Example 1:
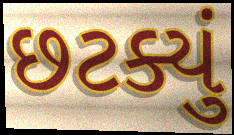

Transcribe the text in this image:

છટક્યું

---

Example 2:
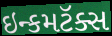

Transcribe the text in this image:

ઇન્કમટૅક્સ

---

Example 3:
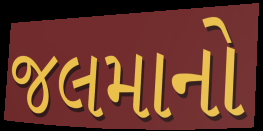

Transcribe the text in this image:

જલમાનો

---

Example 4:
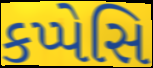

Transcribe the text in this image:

કપ્પેસિ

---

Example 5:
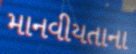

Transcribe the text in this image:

માનવીયતાના